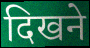
दिखने